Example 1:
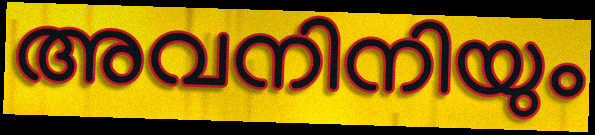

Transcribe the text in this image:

അവനിനിയും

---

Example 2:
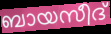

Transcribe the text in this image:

ബായസീദ്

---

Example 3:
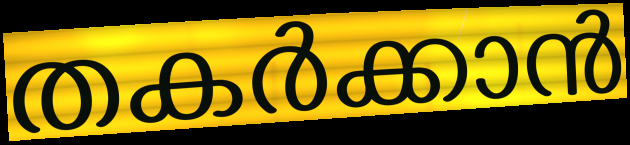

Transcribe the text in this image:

തകർക്കാൻ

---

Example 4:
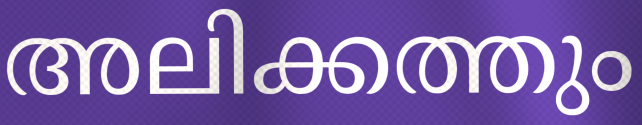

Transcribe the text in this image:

അലിക്കത്തും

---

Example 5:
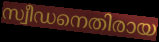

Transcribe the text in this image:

സ്വീഡനെതിരായ